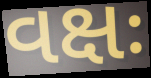
વક્ષઃ